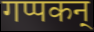
गप्पकन्